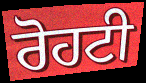
ਰੋਹਟੀ